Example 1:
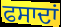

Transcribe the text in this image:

ਫਸਾਦਾਂ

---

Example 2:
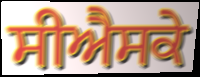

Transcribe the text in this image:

ਸੀਐਸਕੇ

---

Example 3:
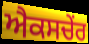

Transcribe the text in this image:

ਐਕਸਚੇਂਰ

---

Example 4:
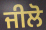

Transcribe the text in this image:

ਜੀਲੋ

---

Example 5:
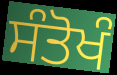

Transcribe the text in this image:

ਸੰਤੋਖੰ